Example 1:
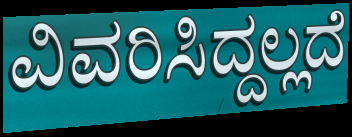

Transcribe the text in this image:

ವಿವರಿಸಿದ್ದಲ್ಲದೆ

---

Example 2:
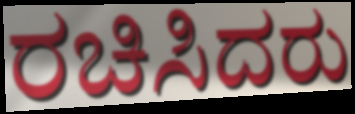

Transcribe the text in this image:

ರಚಿಸಿದರು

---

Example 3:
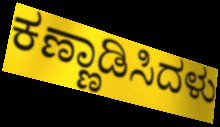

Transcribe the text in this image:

ಕಣ್ಣಾಡಿಸಿದಳು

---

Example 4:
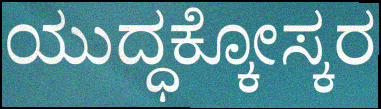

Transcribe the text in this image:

ಯುದ್ಧಕ್ಕೋಸ್ಕರ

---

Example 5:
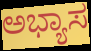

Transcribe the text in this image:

ಅಭ್ಯಾಸ